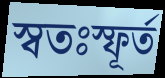
স্বতঃস্ফূৰ্ত